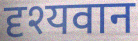
दृश्यवान